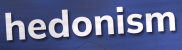
hedonism